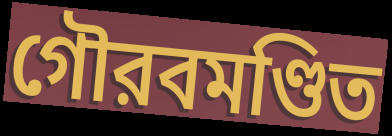
গৌরবমণ্ডিত